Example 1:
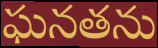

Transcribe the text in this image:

ఘనతను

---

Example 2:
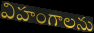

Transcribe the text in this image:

విహంగాలను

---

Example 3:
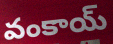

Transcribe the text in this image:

వంకాయ్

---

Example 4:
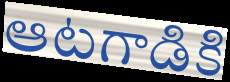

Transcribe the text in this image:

ఆటగాడికి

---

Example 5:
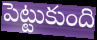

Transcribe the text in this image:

పెట్టుకుంది